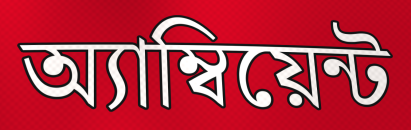
অ্যাম্বিয়েন্ট